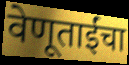
वेणूताईंचा